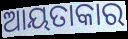
ଆୟତାକାର